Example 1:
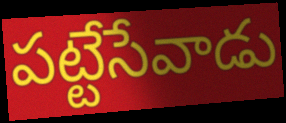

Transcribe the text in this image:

పట్టేసేవాడు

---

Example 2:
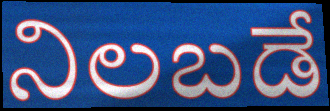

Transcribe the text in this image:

నిలబడే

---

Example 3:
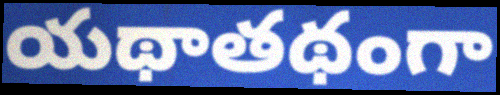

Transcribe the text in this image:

యథాతథంగా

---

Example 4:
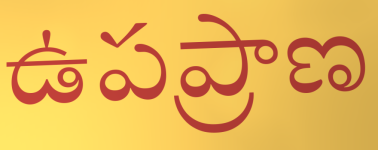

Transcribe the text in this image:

ఉపప్రాణ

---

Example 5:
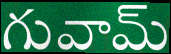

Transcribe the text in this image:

గువామ్